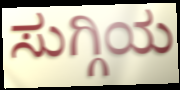
ಸುಗ್ಗಿಯ